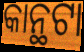
କାନ୍ଥଟା